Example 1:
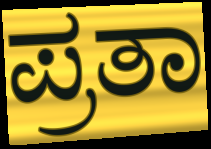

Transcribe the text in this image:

ಪ್ರತಾ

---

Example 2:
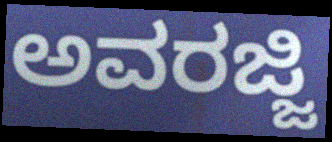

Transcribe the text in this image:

ಅವರಜ್ಜಿ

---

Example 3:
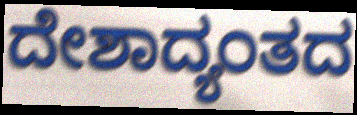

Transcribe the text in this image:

ದೇಶಾದ್ಯಂತದ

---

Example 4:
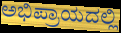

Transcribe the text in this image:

ಅಭಿಪ್ರಾಯದಲ್ಲಿ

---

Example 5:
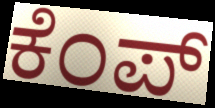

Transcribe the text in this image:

ಕೆಂಪ್